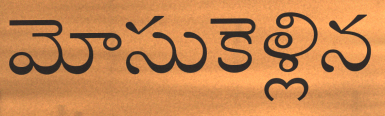
మోసుకెళ్లిన